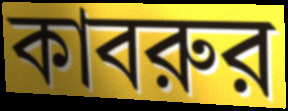
কাবরুর